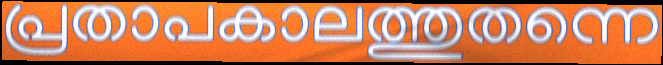
പ്രതാപകാലത്തുതന്നെ